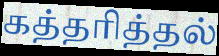
கத்தரித்தல்